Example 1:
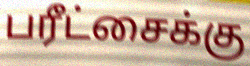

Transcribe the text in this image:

பரீட்சைக்கு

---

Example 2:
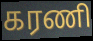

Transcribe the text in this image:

கரணி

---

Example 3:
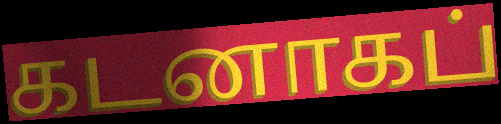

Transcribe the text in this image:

கடனாகப்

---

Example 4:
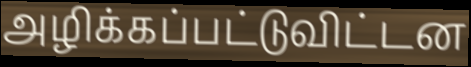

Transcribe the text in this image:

அழிக்கப்பட்டுவிட்டன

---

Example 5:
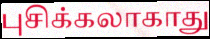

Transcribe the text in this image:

புசிக்கலாகாது